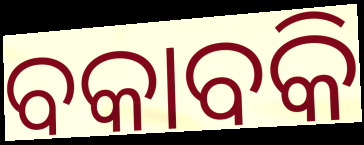
ବକାବକି